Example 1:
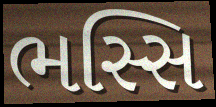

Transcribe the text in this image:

ભસ્સિ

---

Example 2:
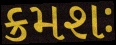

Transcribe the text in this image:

ક્રમશઃ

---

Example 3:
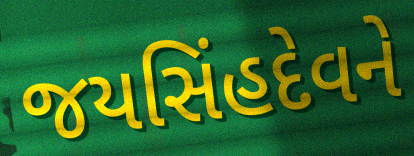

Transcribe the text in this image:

જયસિંહદેવને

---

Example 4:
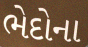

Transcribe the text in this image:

ભેદોના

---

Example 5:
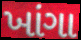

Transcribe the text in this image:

ખાંગા